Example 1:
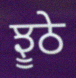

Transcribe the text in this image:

ਝੂਠੇ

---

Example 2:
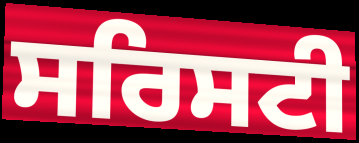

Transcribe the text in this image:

ਸਰਿਸਟੀ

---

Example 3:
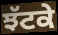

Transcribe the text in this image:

ਝੱਟਕੇ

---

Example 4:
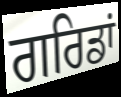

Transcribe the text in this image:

ਗਰਿਡਾਂ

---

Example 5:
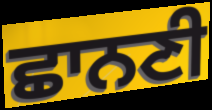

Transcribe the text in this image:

ਛਾਨਣੀ